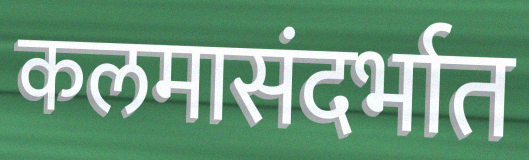
कलमासंदर्भात